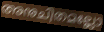
അനുചിതമല്ലോ